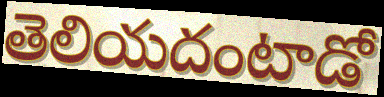
తెలియదంటాడో